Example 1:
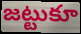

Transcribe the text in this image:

జట్టుకూ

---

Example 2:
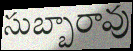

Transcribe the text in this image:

సుబ్బారావు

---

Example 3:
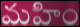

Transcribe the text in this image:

మహిం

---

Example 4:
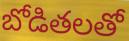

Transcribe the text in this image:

బోడితలతో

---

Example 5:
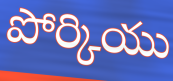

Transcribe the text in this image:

పోర్కియు